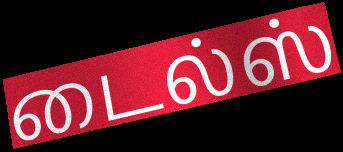
டைல்ஸ்